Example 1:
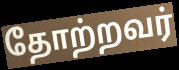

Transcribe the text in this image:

தோற்றவர்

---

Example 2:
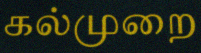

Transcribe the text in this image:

கல்முறை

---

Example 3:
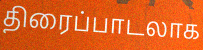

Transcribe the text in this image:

திரைப்பாடலாக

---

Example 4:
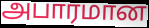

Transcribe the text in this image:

அபாரமான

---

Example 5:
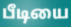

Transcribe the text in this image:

பீடியை